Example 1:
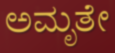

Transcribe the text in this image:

ಅಮೃತೇ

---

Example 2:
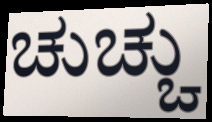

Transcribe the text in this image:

ಚುಚ್ಚು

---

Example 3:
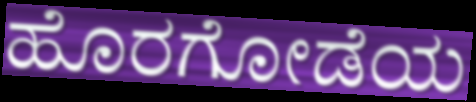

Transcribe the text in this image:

ಹೊರಗೋಡೆಯ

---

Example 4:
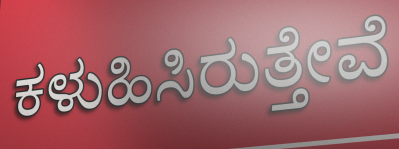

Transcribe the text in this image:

ಕಳುಹಿಸಿರುತ್ತೇವೆ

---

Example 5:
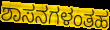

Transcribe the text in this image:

ಶಾಸನಗಳಂತಹ